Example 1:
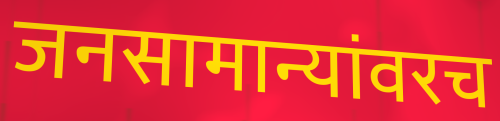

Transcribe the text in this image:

जनसामान्यांवरच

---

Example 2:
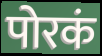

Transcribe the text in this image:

पोरकं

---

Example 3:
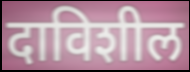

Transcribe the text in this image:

दाविशील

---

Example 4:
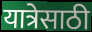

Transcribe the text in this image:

यात्रेसाठी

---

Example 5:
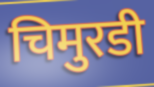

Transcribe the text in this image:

चिमुरडी